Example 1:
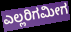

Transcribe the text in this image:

ಎಲ್ಲರಿಗಮೀಗ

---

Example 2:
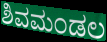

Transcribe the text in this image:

ಶಿವಮಂಡಲ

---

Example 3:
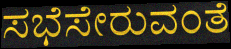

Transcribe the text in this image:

ಸಭೆಸೇರುವಂತೆ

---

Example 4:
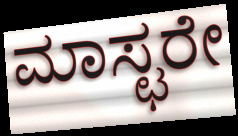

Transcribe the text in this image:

ಮಾಸ್ಟರೇ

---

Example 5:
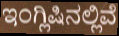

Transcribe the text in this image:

ಇಂಗ್ಲಿಷಿನಲ್ಲಿವೆ